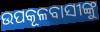
ଉପକୂଳବାସୀଙ୍କୁ